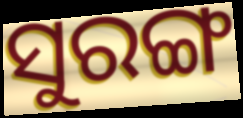
ସୁରଙ୍ଗ